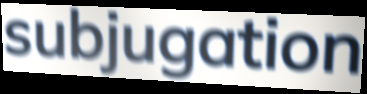
subjugation